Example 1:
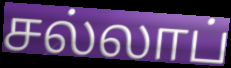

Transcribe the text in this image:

சல்லாப்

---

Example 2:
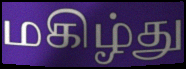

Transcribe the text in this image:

மகிழ்து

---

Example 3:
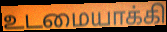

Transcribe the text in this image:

உடமையாக்கி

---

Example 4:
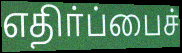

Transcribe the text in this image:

எதிர்ப்பைச்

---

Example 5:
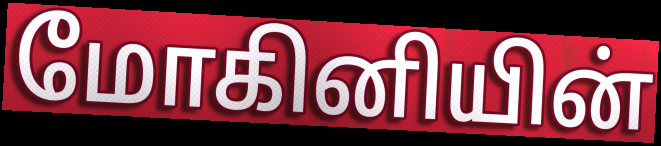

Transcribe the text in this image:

மோகினியின்